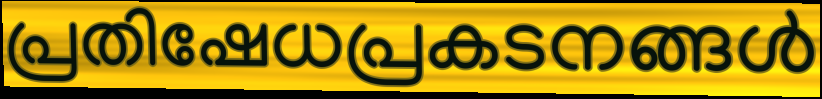
പ്രതിഷേധപ്രകടനങ്ങൾ